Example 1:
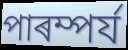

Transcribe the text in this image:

পাৰম্পৰ্য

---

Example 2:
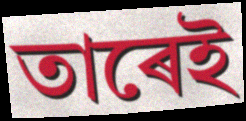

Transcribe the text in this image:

তাৰেই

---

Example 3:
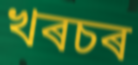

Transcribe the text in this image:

খৰচৰ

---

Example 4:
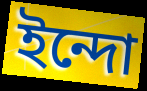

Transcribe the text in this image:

ইন্দো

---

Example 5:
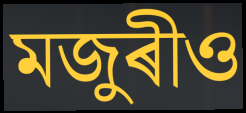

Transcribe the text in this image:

মজুৰীও